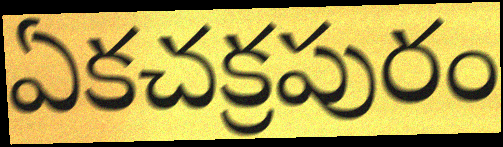
ఏకచక్రపురం